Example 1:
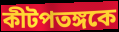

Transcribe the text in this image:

কীটপতঙ্গকে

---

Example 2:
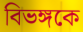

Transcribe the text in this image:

বিভঙ্গকে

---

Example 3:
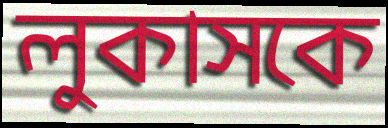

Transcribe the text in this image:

লুকাসকে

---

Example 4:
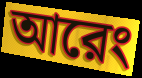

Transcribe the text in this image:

আরেং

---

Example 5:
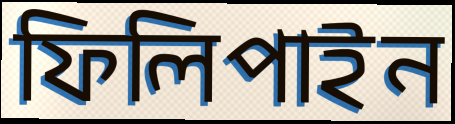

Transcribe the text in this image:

ফিলিপাইন